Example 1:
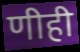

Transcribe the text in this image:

णीही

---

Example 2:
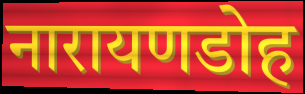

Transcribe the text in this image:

नारायणडोह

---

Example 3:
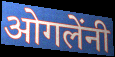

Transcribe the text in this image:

ओगलेंनी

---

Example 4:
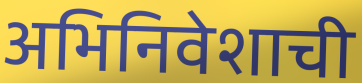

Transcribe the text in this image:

अभिनिवेशाची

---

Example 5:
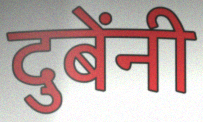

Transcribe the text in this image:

दुबेंनी